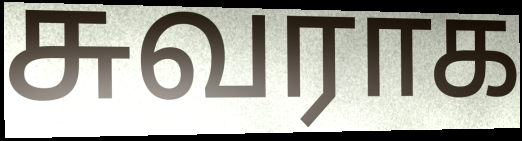
சுவராக